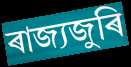
ৰাজ্যজুৰি